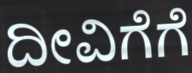
ದೀವಿಗೆಗೆ